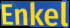
Enkel